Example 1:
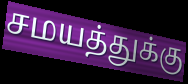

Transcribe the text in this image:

சமயத்துக்கு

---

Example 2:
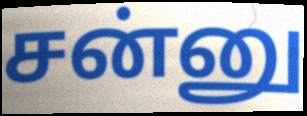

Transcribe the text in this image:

சன்னு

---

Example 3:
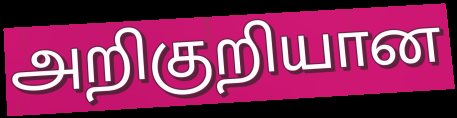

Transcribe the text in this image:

அறிகுறியான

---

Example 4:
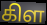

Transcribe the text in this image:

கிள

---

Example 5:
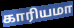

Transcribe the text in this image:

காரியமா